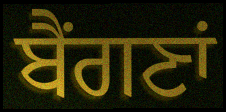
ਬੈਂਗਣਾਂ